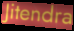
Jitendra